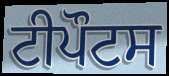
ਟੀਪੌਟਸ